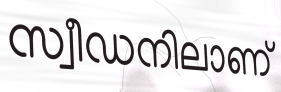
സ്വീഡനിലാണ്